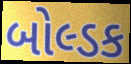
બોલ્ડક